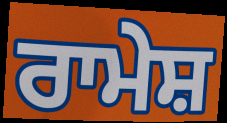
ਰਾਮੇਸ਼